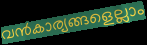
വൻകാര്യങ്ങളെല്ലാം